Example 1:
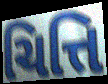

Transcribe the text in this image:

ચિત્તિ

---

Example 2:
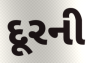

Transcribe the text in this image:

દૂરની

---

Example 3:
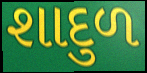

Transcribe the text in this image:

શાદુળ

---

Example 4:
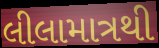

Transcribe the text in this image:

લીલામાત્રથી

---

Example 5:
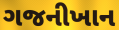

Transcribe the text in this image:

ગજનીખાન